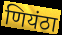
णियंठा